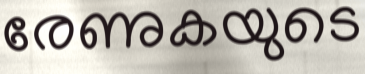
രേണുകയുടെ